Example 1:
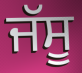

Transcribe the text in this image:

ਜੱਸੂ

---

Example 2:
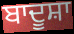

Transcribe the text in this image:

ਬਾਦੂਸ਼ਾ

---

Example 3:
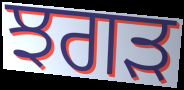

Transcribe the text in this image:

ਝਗੜ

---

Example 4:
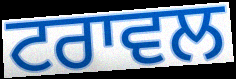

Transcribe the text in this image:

ਟਰਾਵਲ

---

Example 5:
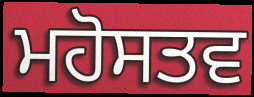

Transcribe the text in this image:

ਮਹੋਸਤਵ